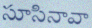
సూసినావా